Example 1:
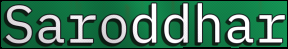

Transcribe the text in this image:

Saroddhar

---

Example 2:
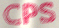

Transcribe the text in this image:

CPS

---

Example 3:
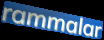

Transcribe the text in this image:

rammalar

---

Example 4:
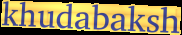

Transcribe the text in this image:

khudabaksh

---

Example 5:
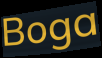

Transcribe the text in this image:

Boga